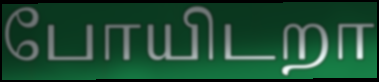
போயிடறா